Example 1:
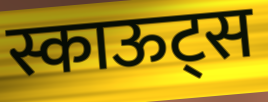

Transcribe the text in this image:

स्काऊट्स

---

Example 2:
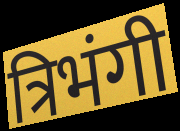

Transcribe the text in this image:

त्रिभंगी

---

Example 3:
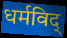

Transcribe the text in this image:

धर्मविद्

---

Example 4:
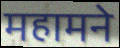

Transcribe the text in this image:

महामने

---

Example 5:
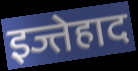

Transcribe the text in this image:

इज्तेहाद